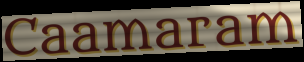
Caamaram